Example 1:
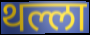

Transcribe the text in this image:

थल्ला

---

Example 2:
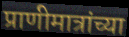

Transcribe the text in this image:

प्राणीमात्रांच्या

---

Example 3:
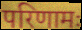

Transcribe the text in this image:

परिणामः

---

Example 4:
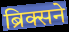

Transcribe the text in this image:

ब्रिक्सने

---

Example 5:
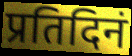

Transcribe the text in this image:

प्रतिदिनं